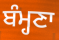
ਬੰਮ੍ਹਣਾ